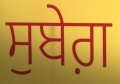
ਸੁਬੇਗ਼